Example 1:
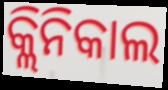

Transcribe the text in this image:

କ୍ଲିନିକାଲ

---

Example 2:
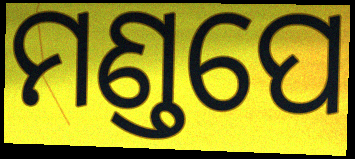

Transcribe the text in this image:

ମଣ୍ଡପେ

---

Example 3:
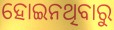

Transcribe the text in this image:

ହୋଇନଥିବାରୁ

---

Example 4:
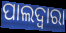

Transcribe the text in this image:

ପାଲଦ୍ୱାରା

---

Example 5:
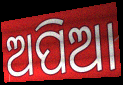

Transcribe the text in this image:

ଅପିଆ